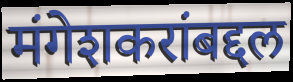
मंगेशकरांबद्दल